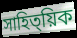
সাহিত্য়িক